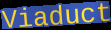
Viaduct